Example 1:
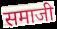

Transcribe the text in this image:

समाजी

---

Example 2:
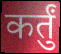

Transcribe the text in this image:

कर्तुं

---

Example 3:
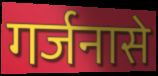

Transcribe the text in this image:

गर्जनासे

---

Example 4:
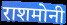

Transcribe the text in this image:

राशमोनी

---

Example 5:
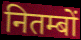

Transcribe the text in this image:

नितम्बों